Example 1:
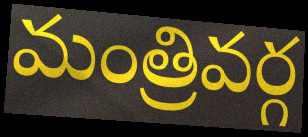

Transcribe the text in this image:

మంత్రివర్గ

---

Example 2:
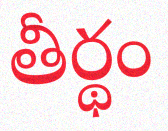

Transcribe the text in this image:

తీర్థం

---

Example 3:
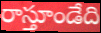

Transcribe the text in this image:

రాస్తూండేది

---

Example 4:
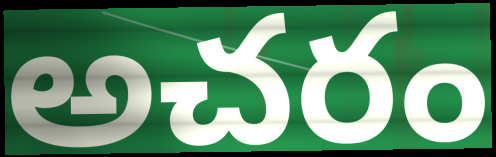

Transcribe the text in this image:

అచరం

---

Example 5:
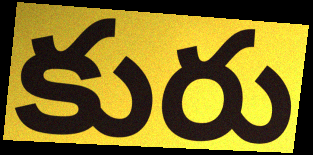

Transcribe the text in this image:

కురు